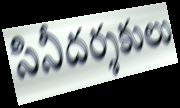
సినీదర్శకులు